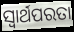
ସ୍ବାର୍ଥପରତା